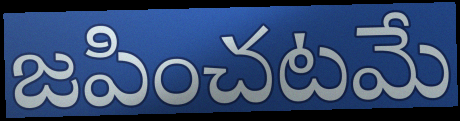
జపించటమే